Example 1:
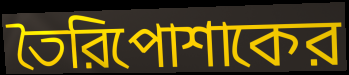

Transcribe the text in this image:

তৈরিপোশাকের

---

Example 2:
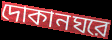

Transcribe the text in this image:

দোকানঘরে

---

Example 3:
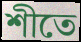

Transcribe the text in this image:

শীতে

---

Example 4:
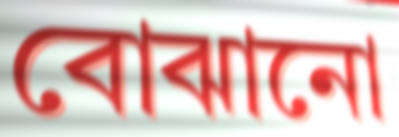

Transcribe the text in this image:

বোঝানো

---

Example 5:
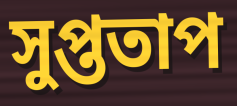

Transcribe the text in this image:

সুপ্ততাপ